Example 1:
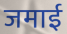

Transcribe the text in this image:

जमाई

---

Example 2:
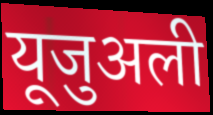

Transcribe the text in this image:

यूजुअली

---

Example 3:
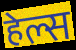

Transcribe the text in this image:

हेल्स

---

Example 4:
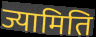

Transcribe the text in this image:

ज्यामिति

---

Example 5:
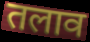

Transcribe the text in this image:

तलाव